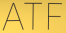
ATF